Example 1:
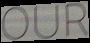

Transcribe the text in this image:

OUR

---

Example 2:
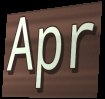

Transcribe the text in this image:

Apr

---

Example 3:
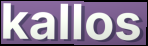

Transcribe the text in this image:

kallos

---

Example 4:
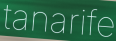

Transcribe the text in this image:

tanarife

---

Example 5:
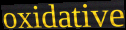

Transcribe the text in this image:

oxidative